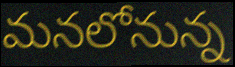
మనలోనున్న